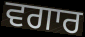
ਵਗਾਰ